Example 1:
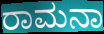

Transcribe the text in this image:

ರಾಮನಾ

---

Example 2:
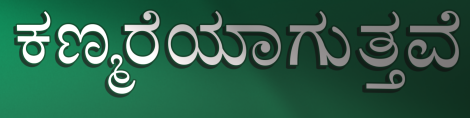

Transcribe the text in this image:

ಕಣ್ಮರೆಯಾಗುತ್ತವೆ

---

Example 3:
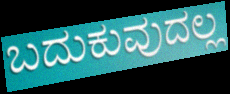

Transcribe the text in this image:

ಬದುಕುವುದಲ್ಲ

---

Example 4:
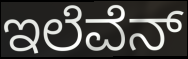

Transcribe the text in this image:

ಇಲೆವೆನ್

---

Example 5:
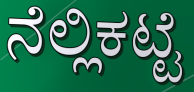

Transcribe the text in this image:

ನೆಲ್ಲಿಕಟ್ಟೆ